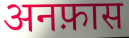
अनफ़ास